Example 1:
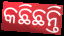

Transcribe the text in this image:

କଛିଛନ୍ତି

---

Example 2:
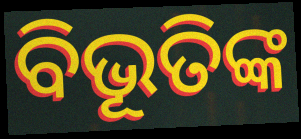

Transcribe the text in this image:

ବିଭୂତିଙ୍କ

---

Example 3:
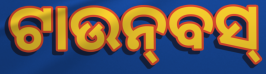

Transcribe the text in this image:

ଟାଉନ୍‍ବସ୍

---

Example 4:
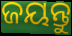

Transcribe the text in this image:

ଜୟନ୍ତୁ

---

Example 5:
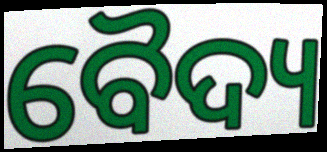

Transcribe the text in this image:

ବୈଦ୍ୟ